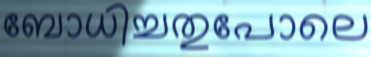
ബോധിച്ചതുപോലെ